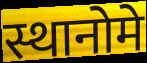
स्थानोमे